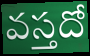
వస్తదో